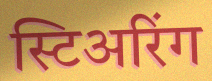
स्टिअरिंग